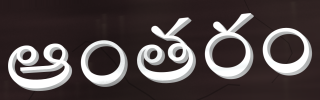
ఆంతరం